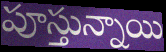
పూస్తున్నాయి